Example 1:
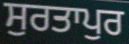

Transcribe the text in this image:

ਸੁਰਤਾਪੁਰ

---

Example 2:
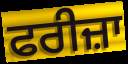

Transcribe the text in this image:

ਫਰੀਜ਼ਾ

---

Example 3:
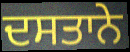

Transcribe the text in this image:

ਦਸਤਾਨੇ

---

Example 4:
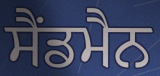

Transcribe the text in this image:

ਸੈਂਡਮੈਨ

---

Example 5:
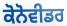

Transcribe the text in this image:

ਕੋਨੋਵੀਡਰ